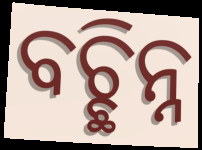
ବଚ୍ଛିନ୍ନ